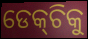
ଡେକ୍‌ଚିକୁ